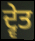
ਦ੍ਵੇਤ